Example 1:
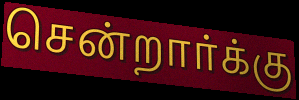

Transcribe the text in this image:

சென்றார்க்கு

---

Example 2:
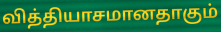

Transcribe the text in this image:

வித்தியாசமானதாகும்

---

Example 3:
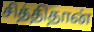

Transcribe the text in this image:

சித்திதான்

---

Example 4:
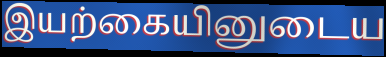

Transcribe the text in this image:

இயற்கையினுடைய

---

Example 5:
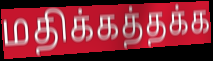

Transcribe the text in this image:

மதிக்கத்தக்க